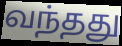
வந்தது